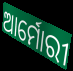
ଆର୍ମୋରୀ